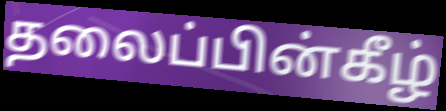
தலைப்பின்கீழ்